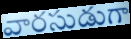
వారసుడుగా